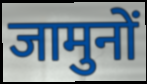
जामुनों